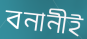
বনানীই